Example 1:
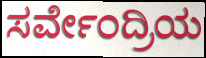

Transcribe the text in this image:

ಸರ್ವೇಂದ್ರಿಯ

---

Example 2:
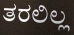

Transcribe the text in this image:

ತರಲಿಲ್ಲ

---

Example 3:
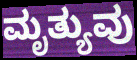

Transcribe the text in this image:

ಮೃತ್ಯುವು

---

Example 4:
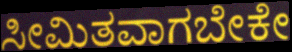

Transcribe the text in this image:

ಸೀಮಿತವಾಗಬೇಕೇ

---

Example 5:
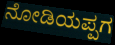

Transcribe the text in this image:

ನೋಡಿಯಪ್ಪಗ